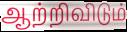
ஆற்றிவிடும்